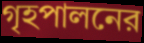
গৃহপালনের